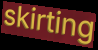
skirting